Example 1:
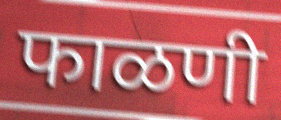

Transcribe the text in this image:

फाळणी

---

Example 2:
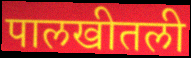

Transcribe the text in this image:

पालखीतली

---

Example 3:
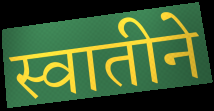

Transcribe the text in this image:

स्वातीने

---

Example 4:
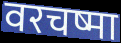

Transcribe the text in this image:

वरचष्मा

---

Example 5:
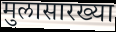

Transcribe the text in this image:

मुलासारख्या